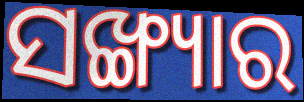
ସଙ୍ଖ୍ୟାର